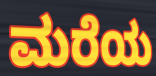
ಮರೆಯ